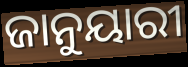
ଜାନୁୟାରୀ